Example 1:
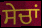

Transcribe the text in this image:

ਸੇਚਾਂ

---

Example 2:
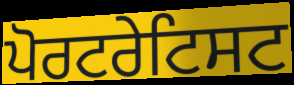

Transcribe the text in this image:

ਪੋਰਟਰੇਟਿਸਟ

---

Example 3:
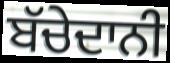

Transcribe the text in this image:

ਬੱਚੇਦਾਨੀ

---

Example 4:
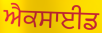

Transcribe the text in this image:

ਐਕਸਾਈਡ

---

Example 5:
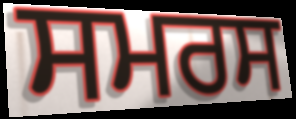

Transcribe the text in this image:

ਸਮਰਸ